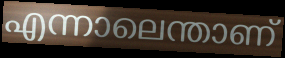
എന്നാലെന്താണ്